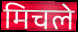
मिचले